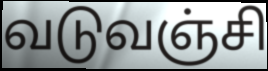
வடுவஞ்சி